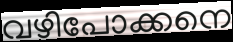
വഴിപോക്കനെ